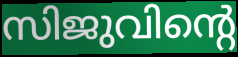
സിജുവിന്റെ